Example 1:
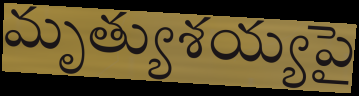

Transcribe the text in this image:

మృత్యుశయ్యపై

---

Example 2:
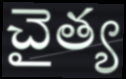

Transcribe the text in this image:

చైత్య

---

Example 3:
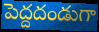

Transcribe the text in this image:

పెద్దదండుగా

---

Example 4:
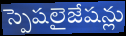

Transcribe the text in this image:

స్పెషలైజేషన్లు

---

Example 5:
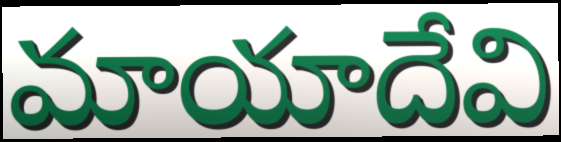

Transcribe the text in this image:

మాయాదేవి